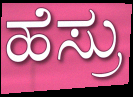
ಹೆಸ್ರು